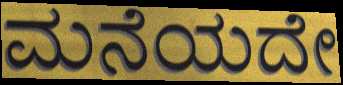
ಮನೆಯದೇ